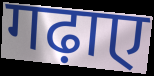
गढ़ाए